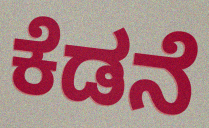
ಕೆಡನೆ